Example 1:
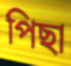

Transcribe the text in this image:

পিছা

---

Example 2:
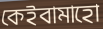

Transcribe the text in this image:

কেইবামাহো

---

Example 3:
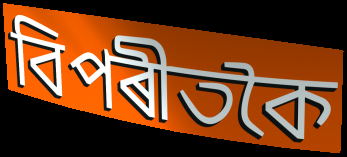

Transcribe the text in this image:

বিপৰীতকৈ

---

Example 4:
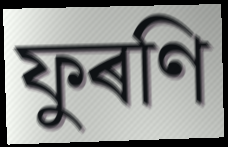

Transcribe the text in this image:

ফুৰণি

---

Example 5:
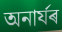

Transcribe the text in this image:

অনাৰ্যৰ